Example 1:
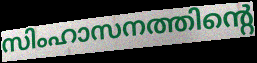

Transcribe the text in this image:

സിംഹാസനത്തിന്റെ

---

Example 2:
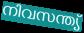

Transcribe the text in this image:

നിവസന്ത്യ്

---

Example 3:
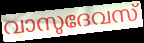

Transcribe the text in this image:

വാസുദേവസ്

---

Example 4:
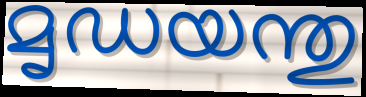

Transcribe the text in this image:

മൃഡയന്തു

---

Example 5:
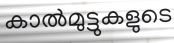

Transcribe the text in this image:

കാൽമുട്ടുകളുടെ